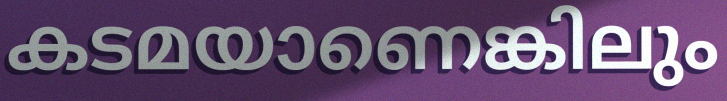
കടമയാണെങ്കിലും